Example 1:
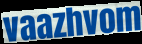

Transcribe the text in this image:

vaazhvom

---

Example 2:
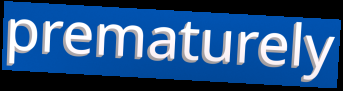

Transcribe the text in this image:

prematurely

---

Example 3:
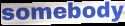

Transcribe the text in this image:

somebody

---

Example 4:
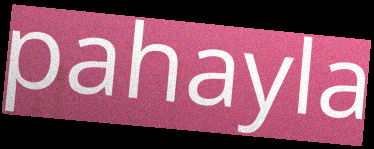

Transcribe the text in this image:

pahayla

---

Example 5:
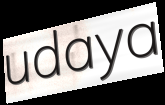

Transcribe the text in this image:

udaya